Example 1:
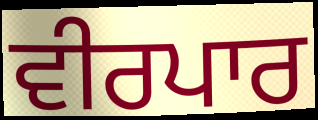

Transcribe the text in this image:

ਵੀਰਪਾਰ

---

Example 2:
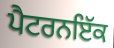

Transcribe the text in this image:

ਪੈਟਰਨਇੱਕ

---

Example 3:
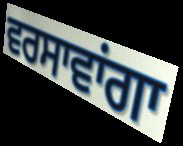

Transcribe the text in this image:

ਵਰਸਾਵਾਂਗਾ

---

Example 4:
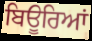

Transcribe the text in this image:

ਬਿਊਰਿਆਂ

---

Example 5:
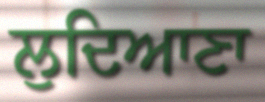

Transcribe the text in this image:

ਲੁਦਿਆਣਾ